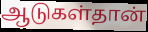
ஆடுகள்தான்